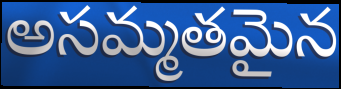
అసమ్మతమైన